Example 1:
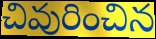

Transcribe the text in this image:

చివురించిన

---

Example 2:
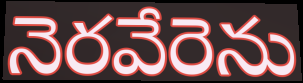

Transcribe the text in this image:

నెరవేరెను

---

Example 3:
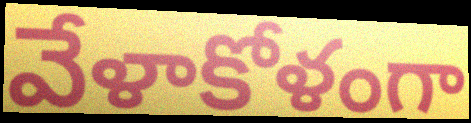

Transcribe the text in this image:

వేళాకోళంగా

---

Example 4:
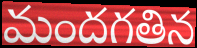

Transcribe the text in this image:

మందగతిన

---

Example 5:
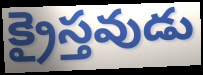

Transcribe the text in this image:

క్రైస్తవుడు